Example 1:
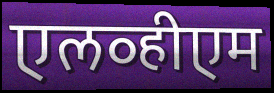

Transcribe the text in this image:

एलव्हीएम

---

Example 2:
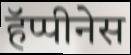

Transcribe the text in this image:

हॅप्पीनेस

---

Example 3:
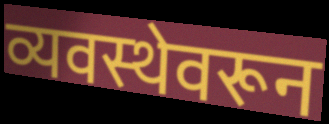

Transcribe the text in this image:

व्यवस्थेवरून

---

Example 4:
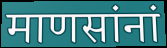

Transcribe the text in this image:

माणसांनां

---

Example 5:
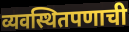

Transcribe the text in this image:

व्यवस्थितपणाची